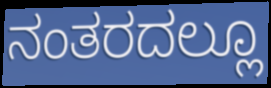
ನಂತರದಲ್ಲೂ